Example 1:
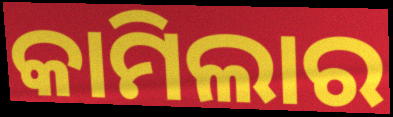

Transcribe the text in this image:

କାମିଲାର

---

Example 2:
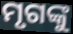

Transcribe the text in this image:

ମୃଗଙ୍କୁ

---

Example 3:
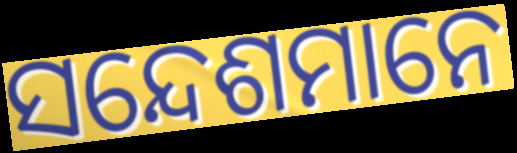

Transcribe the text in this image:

ସନ୍ଦେଶମାନେ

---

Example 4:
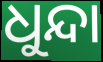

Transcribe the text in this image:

ଧୁନ୍ଦା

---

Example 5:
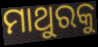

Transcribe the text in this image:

ମାଥୁରକୁ